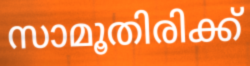
സാമൂതിരിക്ക്